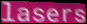
lasers